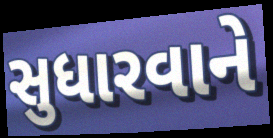
સુધારવાને